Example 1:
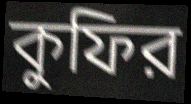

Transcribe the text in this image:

কুফির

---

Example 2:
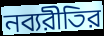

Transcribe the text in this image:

নব্যরীতির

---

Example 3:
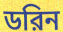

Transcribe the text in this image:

ডরিন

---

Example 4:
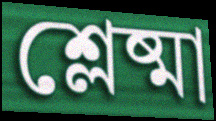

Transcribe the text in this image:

শ্লেষ্মা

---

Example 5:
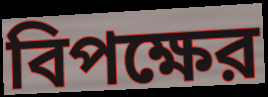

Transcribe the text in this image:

বিপক্ষের